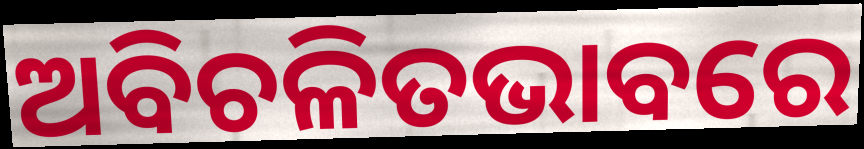
ଅବିଚଳିତଭାବରେ